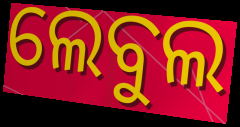
ଲେବୁଲ